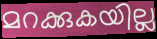
മറക്കുകയില്ല